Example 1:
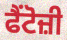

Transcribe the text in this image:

ਫੈਂਟੋਜ਼ੀ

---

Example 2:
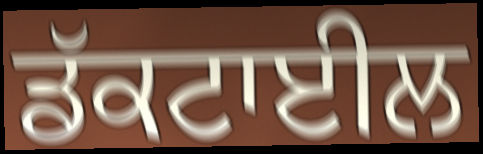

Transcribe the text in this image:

ਡੱਕਟਾਈਲ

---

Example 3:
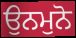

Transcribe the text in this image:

ਉਨਮੁਨੋ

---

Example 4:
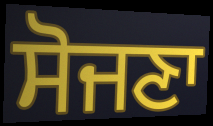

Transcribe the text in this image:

ਸੋਜਣਾ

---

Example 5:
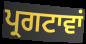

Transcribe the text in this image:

ਪ੍ਰਗਟਾਵਾਂ